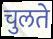
चुलते